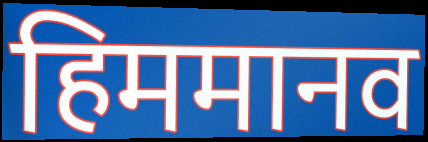
हिममानव